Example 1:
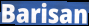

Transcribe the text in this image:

Barisan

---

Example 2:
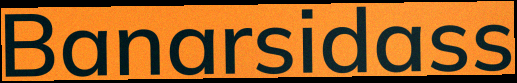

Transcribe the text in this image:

Banarsidass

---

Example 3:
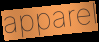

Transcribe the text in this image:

apparel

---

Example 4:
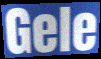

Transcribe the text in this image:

Gele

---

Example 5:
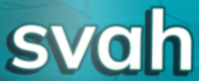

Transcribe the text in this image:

svah